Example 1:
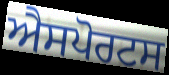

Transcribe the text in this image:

ਐਸਪੋਰਟਸ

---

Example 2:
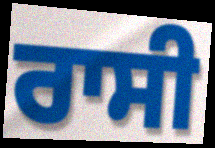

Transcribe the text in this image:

ਰਾਸੀ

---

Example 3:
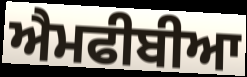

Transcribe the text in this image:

ਐਮਫੀਬੀਆ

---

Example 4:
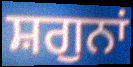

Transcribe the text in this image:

ਸ਼ਗੁਨਾਂ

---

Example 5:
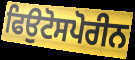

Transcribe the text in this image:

ਫਿਉਟੋਸਪੋਰੀਨ